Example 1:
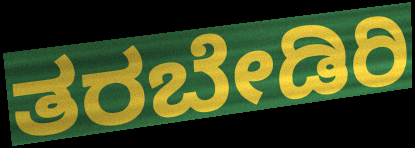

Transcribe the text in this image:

ತರಬೇಡಿರಿ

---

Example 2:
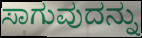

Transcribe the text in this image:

ಸಾಗುವುದನ್ನು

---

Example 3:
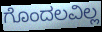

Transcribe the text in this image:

ಗೊಂದಲವಿಲ್ಲ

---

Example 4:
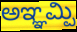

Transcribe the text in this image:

ಅಞ್ಞಮ್ಪಿ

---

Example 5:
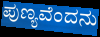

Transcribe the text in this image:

ಪುಣ್ಯವೆಂದನು